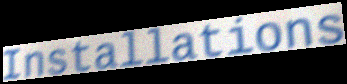
Installations